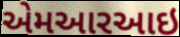
એમઆરઆઇ